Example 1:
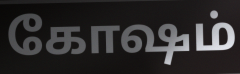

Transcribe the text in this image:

கோஷம்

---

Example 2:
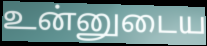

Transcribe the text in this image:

உன்னுடைய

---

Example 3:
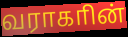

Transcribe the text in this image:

வராகரின்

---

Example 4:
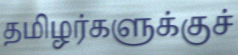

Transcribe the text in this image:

தமிழர்களுக்குச்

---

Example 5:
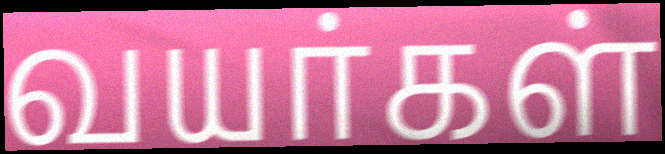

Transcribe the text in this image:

வயர்கள்